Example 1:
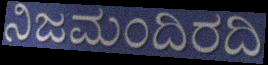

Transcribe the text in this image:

ನಿಜಮಂದಿರದಿ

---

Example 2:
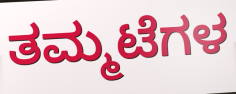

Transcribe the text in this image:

ತಮ್ಮಟೆಗಳ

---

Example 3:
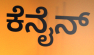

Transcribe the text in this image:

ಕೆನೈನ್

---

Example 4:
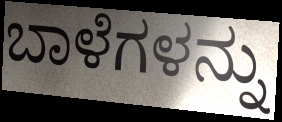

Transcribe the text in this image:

ಬಾಳೆಗಳನ್ನು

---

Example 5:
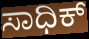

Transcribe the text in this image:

ಸಾಧಿಕ್